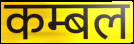
कम्बल